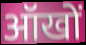
ऑखों